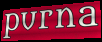
purna